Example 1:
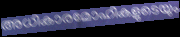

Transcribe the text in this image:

അധികാരമോഹികളുടെയും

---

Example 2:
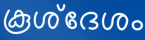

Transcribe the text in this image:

കൂശ്ദേശം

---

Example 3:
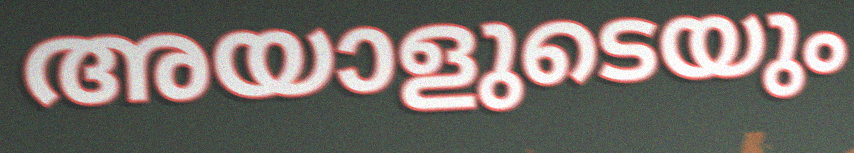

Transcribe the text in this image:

അയാളുടെയും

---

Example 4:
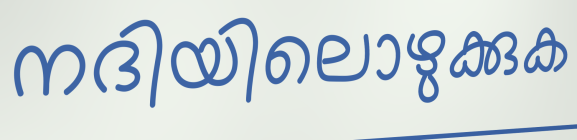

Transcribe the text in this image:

നദിയിലൊഴുക്കുക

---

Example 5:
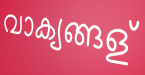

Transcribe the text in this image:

വാക്യങ്ങള്